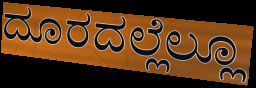
ದೂರದಲ್ಲೆಲ್ಲೂ